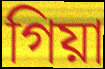
গিয়া